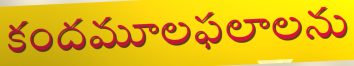
కందమూలఫలాలను